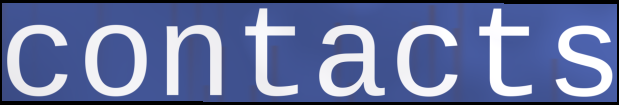
contacts